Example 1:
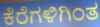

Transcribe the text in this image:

ಕೆರೆಗಳಿಗಿಂತ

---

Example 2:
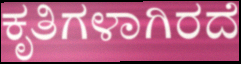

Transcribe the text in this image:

ಕೃತಿಗಳಾಗಿರದೆ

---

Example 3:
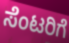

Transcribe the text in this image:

ಸೆಂಟರಿಗೆ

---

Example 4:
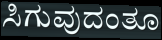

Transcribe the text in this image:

ಸಿಗುವುದಂತೂ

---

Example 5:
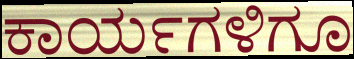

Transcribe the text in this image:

ಕಾರ್ಯಗಳಿಗೂ